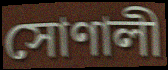
সোণালী